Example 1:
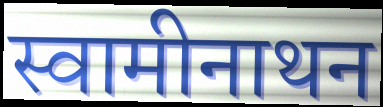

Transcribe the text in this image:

स्वामीनाथन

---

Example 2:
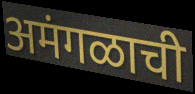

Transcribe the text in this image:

अमंगळाची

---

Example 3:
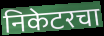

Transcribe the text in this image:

निकेटरचा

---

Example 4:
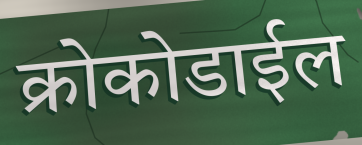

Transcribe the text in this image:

क्रोकोडाईल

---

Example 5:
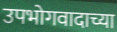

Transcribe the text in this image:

उपभोगवादाच्या